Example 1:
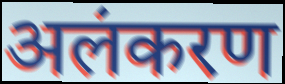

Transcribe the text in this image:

अलंकरण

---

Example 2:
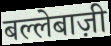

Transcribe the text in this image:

बल्लेबाज़ी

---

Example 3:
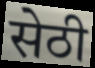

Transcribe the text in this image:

सेठी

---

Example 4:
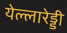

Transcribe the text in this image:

येल्लारेड्डी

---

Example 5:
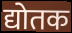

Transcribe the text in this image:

द्योतक